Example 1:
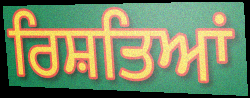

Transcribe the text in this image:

ਰਿਸ਼ਤਿਆਂ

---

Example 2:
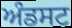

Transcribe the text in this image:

ਅੰਡਸਟ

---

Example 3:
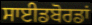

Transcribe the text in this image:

ਸਾਈਡਬੋਰਡਾਂ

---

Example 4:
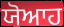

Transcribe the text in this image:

ਯੋਆਹ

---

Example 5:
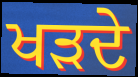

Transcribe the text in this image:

ਖੜਦੇ